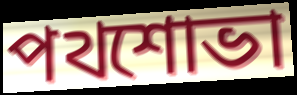
পথশোভা